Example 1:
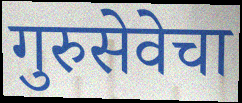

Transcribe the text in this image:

गुरुसेवेचा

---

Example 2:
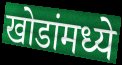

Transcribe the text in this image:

खोडांमध्ये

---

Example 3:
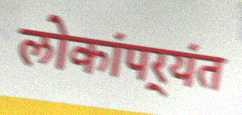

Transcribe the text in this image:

लोकांपर्यंत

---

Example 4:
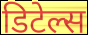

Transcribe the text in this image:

डिटेल्स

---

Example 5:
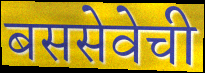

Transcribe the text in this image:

बससेवेची